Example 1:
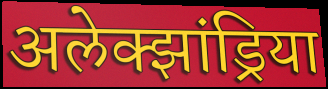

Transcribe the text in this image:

अलेक्झांड्रिया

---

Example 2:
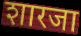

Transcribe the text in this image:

शारजा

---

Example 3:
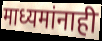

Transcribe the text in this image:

माध्यमांनाही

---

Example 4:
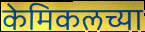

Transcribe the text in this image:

केमिकलच्या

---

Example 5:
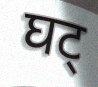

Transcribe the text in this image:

घट्